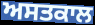
ਅਸਤਕਾਲ